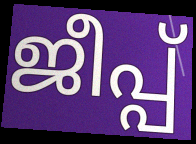
ജീപ്പ്